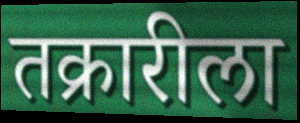
तक्रारीला